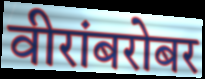
वीरांबरोबर